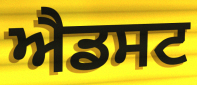
ਐਡਸਟ